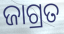
ଜାଗ୍ରତ